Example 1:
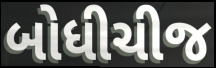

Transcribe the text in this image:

બોધીચીજ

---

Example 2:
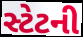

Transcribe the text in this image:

સ્ટેટની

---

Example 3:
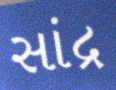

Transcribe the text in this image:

સાંદ્ર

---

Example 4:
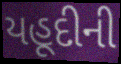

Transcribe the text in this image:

યહૂદીની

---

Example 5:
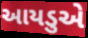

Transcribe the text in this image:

આયડુએ